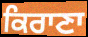
ਕਿਰਾਣਾ